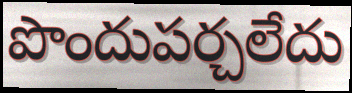
పొందుపర్చలేదు